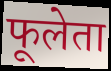
फूलेता